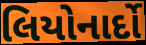
લિયોનાર્દો